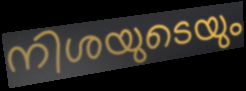
നിശയുടെയും